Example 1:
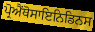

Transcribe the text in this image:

ਪ੍ਰੋਐਂਥੋਸਾਇਨਿਡਿਨਸ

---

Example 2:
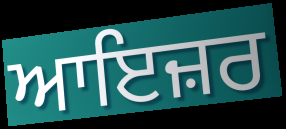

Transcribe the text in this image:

ਆਇਜ਼ਰ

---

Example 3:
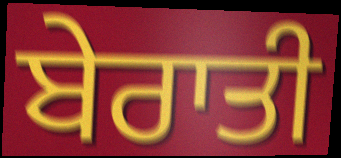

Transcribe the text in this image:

ਬੇਰਾਤੀ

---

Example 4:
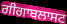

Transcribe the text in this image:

ਗੀਗਾਬਲਾਸਟ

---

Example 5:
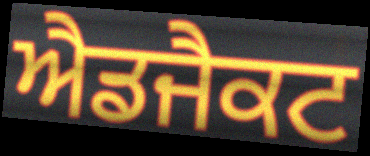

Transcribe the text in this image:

ਐਡਜੈਕਟ